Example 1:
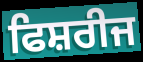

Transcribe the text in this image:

ਫਿਸ਼ਰੀਜ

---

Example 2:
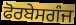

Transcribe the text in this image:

ਫੋਰਬੇਸਗੰਜ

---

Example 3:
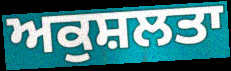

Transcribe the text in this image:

ਅਕੁਸ਼ਲਤਾ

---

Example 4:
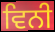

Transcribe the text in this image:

ਵਿਨੀ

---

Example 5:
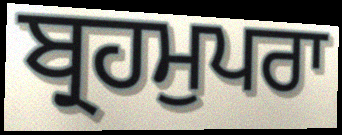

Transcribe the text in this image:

ਬ੍ਰਹਮੁਪਰਾ